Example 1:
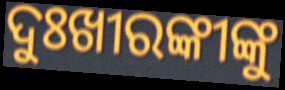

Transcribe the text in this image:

ଦୁଃଖୀରଙ୍କୀଙ୍କୁ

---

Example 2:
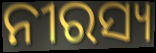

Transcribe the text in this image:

ନୀରସ୍ୟ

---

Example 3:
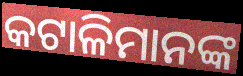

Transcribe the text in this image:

କଟାଳିମାନଙ୍କ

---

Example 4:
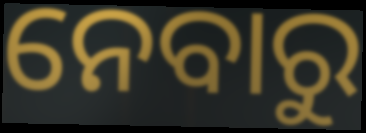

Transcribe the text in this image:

ନେବାରୁ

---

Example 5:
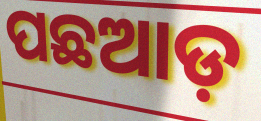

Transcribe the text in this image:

ପଛଆଡ଼